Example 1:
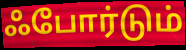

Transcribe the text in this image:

ஃபோர்டும்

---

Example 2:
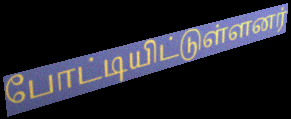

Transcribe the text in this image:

போட்டியிட்டுள்ளனர்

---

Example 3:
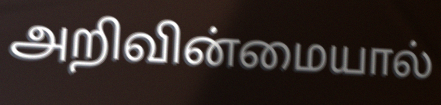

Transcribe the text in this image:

அறிவின்மையால்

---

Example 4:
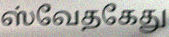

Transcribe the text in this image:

ஸ்வேதகேது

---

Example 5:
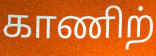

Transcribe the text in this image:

காணிற்